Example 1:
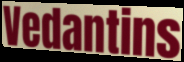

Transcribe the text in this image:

Vedantins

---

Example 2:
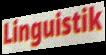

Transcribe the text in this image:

Linguistik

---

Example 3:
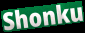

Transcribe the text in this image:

Shonku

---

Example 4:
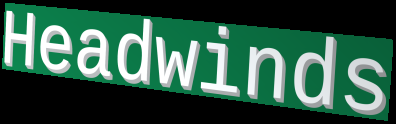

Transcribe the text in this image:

Headwinds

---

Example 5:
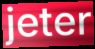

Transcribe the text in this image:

jeter